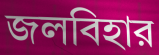
জলবিহার